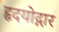
हृदयोद्गार